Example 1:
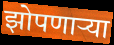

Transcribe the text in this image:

झोपणार्‍या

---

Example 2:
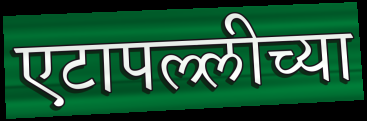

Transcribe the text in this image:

एटापल्लीच्या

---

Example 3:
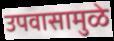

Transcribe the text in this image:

उपवासामुळे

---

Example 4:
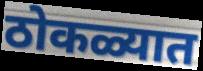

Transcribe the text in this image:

ठोकळ्यात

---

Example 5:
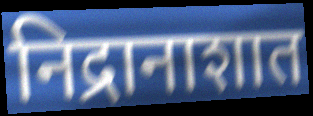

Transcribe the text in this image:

निद्रानाशात